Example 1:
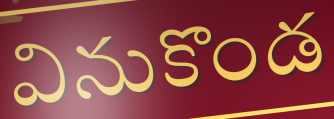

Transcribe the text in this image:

వినుకొండ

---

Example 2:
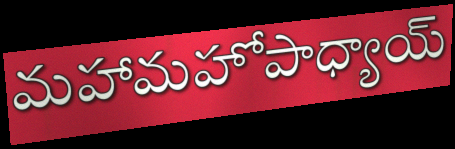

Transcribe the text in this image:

మహామహోపాధ్యాయ్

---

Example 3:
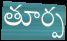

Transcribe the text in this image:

తూర్ప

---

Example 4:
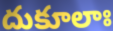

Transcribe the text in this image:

దుకూలాః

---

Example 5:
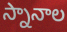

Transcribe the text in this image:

స్నానాల